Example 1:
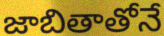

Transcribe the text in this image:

జాబితాతోనే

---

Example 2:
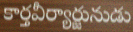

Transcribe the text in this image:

కార్తవీర్యార్జునుడు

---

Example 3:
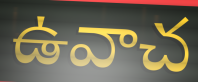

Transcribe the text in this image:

ఉవాచ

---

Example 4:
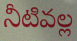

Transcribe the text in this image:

నీటివల్ల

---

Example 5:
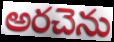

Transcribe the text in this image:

అరచెను